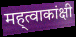
मह्त्वाकांक्षी